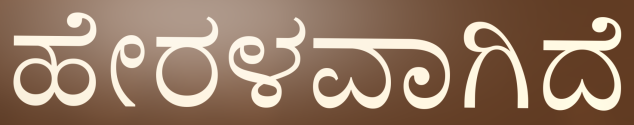
ಹೇರಳವಾಗಿದೆ